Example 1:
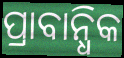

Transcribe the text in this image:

ପ୍ରାବାନ୍ଧିକ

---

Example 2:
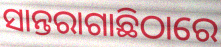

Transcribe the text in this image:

ସାନ୍ତରାଗାଛିଠାରେ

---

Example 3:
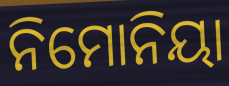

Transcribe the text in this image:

ନିମୋନିୟା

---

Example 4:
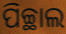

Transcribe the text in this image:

ପିଚ୍ଛାଲ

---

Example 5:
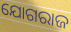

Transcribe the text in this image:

ଯୋଗରାଜ